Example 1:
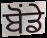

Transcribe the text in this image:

ਬੋਂਡੇ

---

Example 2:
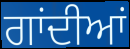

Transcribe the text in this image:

ਗਾਂਦੀਆਂ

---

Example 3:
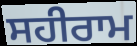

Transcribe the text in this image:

ਸਹੀਰਾਮ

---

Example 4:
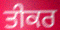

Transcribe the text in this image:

ਤੀਕਰ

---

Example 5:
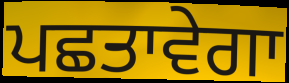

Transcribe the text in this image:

ਪਛਤਾਵੇਗਾ